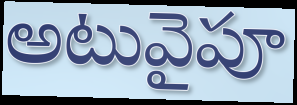
అటువైపూ